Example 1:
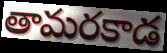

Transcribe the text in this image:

తామరకాడ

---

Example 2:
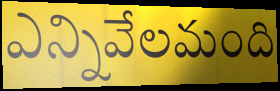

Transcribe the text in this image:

ఎన్నివేలమంది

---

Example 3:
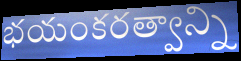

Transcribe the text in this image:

భయంకరత్వాన్ని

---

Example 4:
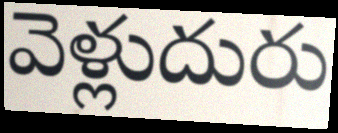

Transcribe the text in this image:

వెళ్లుదురు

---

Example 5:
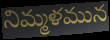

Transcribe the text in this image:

నిమ్మళమున